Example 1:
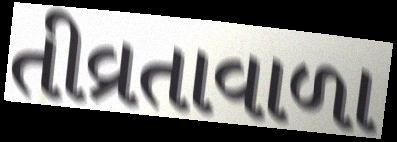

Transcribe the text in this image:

તીવ્રતાવાળા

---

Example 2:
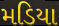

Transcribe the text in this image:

મડિયા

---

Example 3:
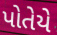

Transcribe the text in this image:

પોતેયે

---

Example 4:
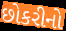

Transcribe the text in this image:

છોકરીનો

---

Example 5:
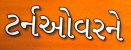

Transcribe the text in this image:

ટર્નઓવરને